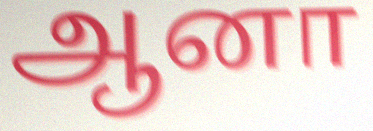
ஆனா